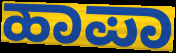
ಹಾಪಾ